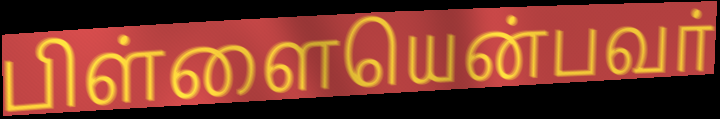
பிள்ளையென்பவர்